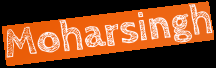
Moharsingh